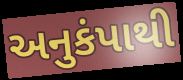
અનુકંપાથી